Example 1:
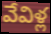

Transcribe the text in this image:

వేవిళ్ల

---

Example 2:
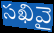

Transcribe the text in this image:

సఖివై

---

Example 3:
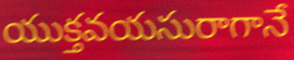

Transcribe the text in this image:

యుక్తవయసురాగానే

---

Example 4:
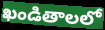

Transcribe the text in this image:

ఖండితాలలో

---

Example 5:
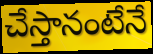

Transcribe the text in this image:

చేస్తానంటేనే